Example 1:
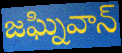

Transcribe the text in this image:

జఘ్నివాన్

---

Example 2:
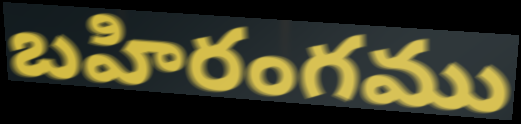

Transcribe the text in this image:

బహిరంగము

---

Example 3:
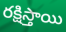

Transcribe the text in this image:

రక్షిస్తాయి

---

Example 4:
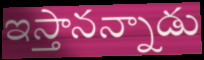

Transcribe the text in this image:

ఇస్తానన్నాడు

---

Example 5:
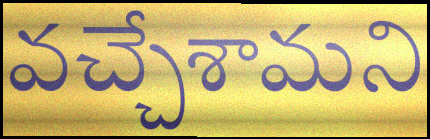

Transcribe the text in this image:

వచ్చేశామని